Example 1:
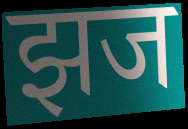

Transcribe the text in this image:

झज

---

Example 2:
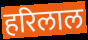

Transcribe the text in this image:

हरिलाल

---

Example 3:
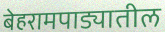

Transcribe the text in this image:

बेहरामपाड्यातील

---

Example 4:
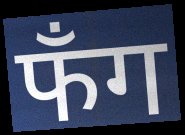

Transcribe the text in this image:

फँग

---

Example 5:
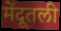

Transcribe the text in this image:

मेंदूतली